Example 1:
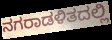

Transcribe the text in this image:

ನಗರಾಡಳಿತದಲ್ಲಿ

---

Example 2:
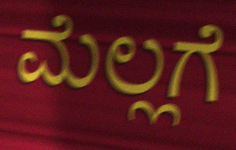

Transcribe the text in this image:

ಮೆಲ್ಲಗೆ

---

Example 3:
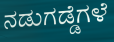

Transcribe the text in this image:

ನಡುಗಡ್ಡೆಗಳೆ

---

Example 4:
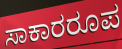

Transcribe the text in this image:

ಸಾಕಾರರೂಪ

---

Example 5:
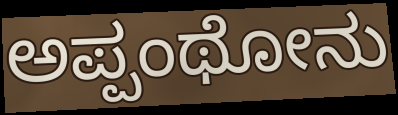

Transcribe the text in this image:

ಅಪ್ಪಂಥೋನು